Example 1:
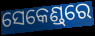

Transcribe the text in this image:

ସେକେଣ୍ଡ୍‌ରେ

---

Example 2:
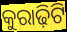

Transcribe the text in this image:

କୁରାଢ଼ିଟି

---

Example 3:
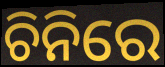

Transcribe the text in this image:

ଚିନିରେ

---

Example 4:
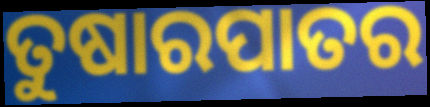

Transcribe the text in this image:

ତୁଷାରପାତର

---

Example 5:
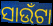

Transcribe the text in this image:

ସାଉଁଟା